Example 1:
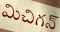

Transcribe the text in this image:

మిచిగన్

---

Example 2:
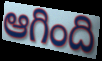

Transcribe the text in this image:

ఆగింది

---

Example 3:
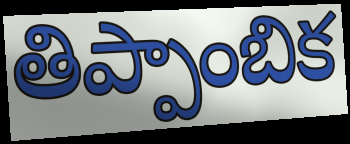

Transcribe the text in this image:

తిప్పాంబిక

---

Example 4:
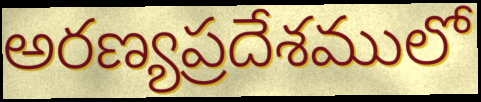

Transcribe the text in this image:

అరణ్యప్రదేశములో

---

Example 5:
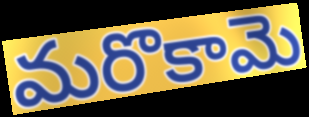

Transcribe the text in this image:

మరొకామె